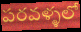
పరవళ్ళలో